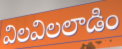
విలవిలలాడిం